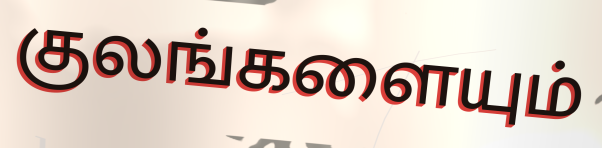
குலங்களையும்